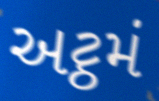
અટ્ઠમં